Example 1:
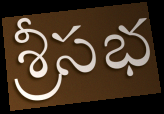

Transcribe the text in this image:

శ్రీసభ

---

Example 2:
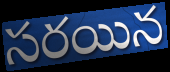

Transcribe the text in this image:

సరయిన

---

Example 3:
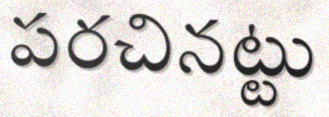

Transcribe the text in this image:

పరచినట్టు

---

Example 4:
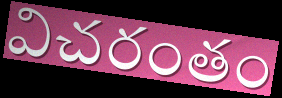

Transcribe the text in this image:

విచరంతం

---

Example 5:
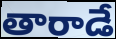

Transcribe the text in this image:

తారాడే